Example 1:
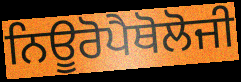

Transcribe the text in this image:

ਨਿਊਰੋਪੈਥੋਲੋਜੀ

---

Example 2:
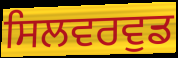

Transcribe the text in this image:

ਸਿਲਵਰਵੁਡ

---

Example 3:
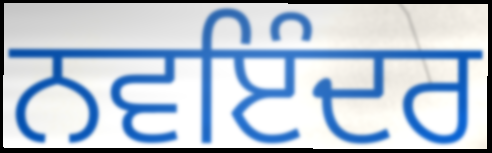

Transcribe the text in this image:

ਨਵਇੰਦਰ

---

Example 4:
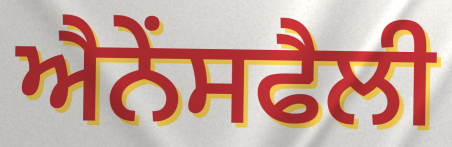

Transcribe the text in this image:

ਐਨੇਂਸਫੈਲੀ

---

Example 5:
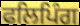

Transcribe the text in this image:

ਫਲਿਪਿੰਗ